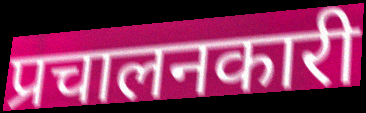
प्रचालनकारी